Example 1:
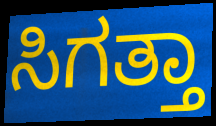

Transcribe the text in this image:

ಸಿಗತ್ತಾ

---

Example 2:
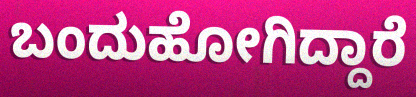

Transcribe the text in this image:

ಬಂದುಹೋಗಿದ್ದಾರೆ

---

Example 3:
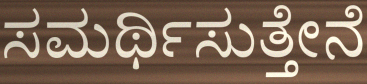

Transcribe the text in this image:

ಸಮರ್ಥಿಸುತ್ತೇನೆ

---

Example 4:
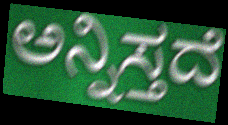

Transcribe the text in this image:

ಅನ್ನಿಸ್ತದೆ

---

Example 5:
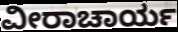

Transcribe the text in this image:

ವೀರಾಚಾರ್ಯ